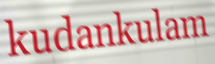
kudankulam